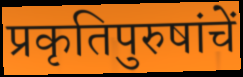
प्रकृतिपुरुषांचें